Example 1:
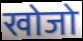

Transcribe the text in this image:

खोजो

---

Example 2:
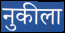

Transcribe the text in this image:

नुकीला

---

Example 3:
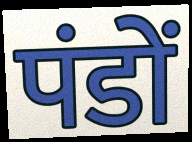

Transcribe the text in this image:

पंडों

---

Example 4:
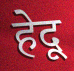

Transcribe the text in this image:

हेदू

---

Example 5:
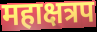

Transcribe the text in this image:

महाक्षत्रप